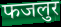
फजलुर